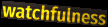
watchfulness